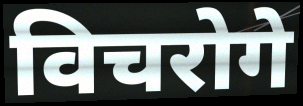
विचरोगे